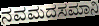
ನವಮದಸಮಾನಿ